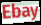
Ebay